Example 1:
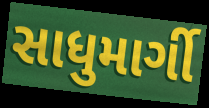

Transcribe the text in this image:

સાધુમાર્ગી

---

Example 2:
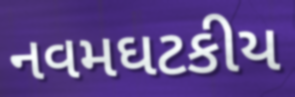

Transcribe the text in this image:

નવમઘટકીય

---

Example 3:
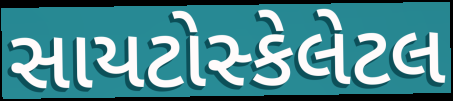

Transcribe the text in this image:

સાયટોસ્કેલેટલ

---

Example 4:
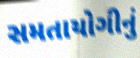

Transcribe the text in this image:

સમતાયોગીનું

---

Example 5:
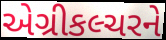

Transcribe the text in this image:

એગ્રીકલ્ચરને